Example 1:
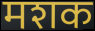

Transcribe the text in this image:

मशक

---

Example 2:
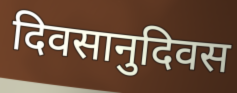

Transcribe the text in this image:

दिवसानुदिवस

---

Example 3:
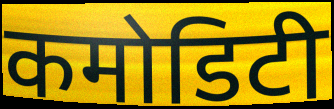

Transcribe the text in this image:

कमोडिटी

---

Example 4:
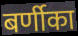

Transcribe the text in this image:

बर्णीका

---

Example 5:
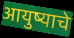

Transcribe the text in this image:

आयुष्याचे